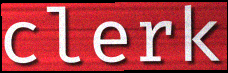
clerk